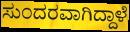
ಸುಂದರವಾಗಿದ್ದಾಳೆ